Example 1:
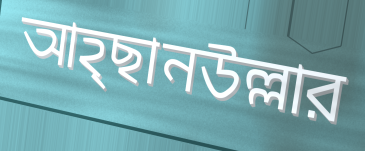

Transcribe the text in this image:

আহ্ছানউল্লার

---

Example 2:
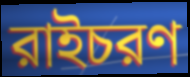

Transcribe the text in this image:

রাইচরণ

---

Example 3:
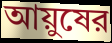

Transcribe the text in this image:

আয়ুষের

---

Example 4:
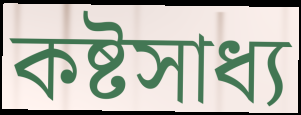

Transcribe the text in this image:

কষ্টসাধ্য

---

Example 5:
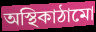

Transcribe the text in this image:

অস্থিকাঠামো